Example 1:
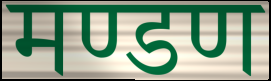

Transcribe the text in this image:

मण्डण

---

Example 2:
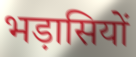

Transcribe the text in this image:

भड़ासियों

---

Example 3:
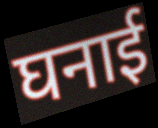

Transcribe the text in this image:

घनाई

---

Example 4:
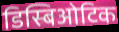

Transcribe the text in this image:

डिस्बिओटिक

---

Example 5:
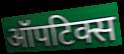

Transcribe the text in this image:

ऑपटिक्स